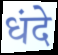
धंदे